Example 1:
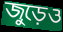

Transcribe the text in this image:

জুড়েও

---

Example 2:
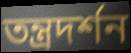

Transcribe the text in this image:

তন্ত্রদর্শন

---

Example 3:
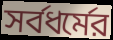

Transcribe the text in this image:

সর্বধর্মের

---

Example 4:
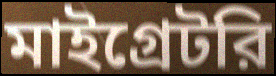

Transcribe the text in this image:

মাইগ্রেটরি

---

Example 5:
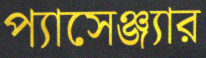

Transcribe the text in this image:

প্যাসেঞ্জ্যার